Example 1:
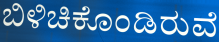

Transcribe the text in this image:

ಬಿಳಿಚಿಕೊಂಡಿರುವೆ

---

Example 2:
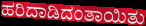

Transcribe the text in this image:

ಹರಿದಾಡಿದಂತಾಯಿತು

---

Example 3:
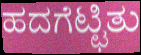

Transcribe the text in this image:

ಹದಗೆಟ್ಟಿತು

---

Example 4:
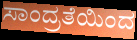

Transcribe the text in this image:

ಸಾಂದ್ರತೆಯಿಂದ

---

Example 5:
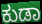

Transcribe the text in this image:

ಕುಡಾ